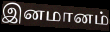
இனமானம்